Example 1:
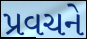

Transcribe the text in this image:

પ્રવચને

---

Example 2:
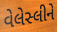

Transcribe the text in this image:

વેલેસ્લીને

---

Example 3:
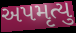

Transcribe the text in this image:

અપમૃત્યુ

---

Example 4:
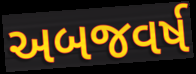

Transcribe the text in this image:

અબજવર્ષ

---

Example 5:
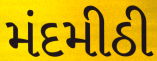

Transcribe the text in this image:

મંદમીઠી